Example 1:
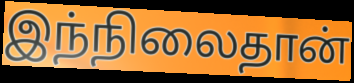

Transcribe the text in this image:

இந்நிலைதான்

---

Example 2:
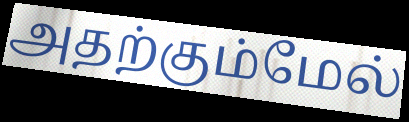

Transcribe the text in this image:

அதற்கும்மேல்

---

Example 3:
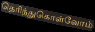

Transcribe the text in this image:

தெரிந்துகொள்வோம்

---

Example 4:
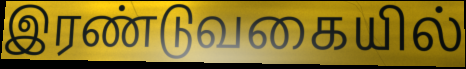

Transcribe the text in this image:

இரண்டுவகையில்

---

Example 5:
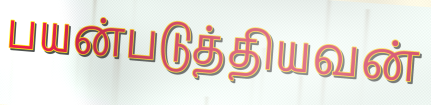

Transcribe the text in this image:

பயன்படுத்தியவன்